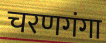
चरणगंगा